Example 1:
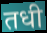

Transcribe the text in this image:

तधी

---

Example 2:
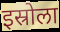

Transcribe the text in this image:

इस्रोला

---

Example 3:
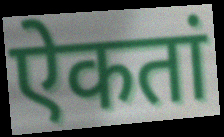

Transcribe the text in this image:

ऐकतां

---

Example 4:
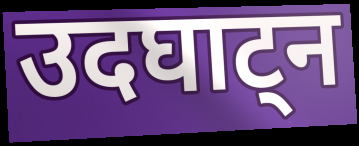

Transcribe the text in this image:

उदघाट्न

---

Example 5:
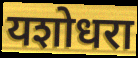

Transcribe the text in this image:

यशोधरा